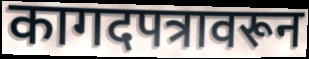
कागदपत्रावरून